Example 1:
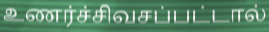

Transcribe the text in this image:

உணர்ச்சிவசப்பட்டால்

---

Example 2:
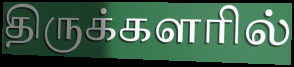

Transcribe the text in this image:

திருக்களரில்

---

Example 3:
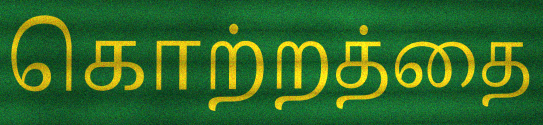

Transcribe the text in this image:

கொற்றத்தை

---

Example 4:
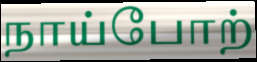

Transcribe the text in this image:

நாய்போற்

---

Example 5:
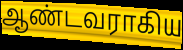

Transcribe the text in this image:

ஆண்டவராகிய